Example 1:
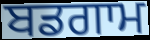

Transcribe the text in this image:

ਬਡਗਾਮ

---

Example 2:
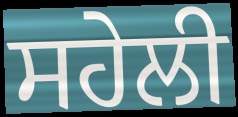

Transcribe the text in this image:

ਸਹੇਲੀ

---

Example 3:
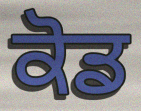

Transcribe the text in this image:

ਕੋਡ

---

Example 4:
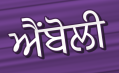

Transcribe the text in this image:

ਐਂਬੋਲੀ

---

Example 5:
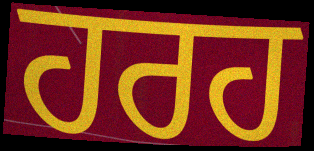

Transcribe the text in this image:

ਹਰਹ